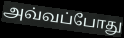
அவ்வப்போது